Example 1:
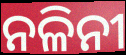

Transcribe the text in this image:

ନଳିନୀ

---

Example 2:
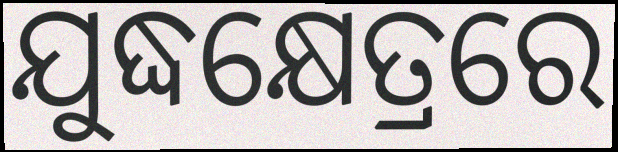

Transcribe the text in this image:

ଯୁଦ୍ଧକ୍ଷେତ୍ରରେ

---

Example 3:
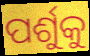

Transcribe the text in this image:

ପର୍ଶୁକୁ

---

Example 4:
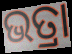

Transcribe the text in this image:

ଭତ୍ରା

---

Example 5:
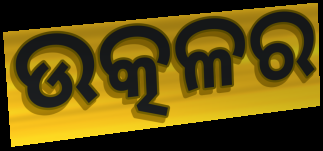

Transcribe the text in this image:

ଉତ୍କଳର